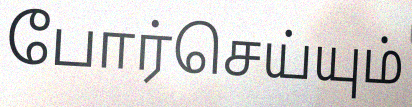
போர்செய்யும்